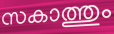
സകാത്തും